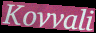
Kovvali